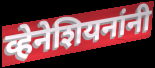
व्हेनेशियनांनी